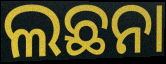
ଲଛନା